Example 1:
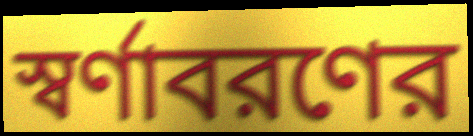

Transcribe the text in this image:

স্বর্ণাবরণের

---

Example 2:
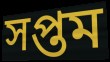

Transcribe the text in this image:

সপ্তম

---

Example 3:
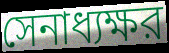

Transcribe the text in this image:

সেনাধ্যক্ষর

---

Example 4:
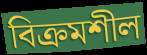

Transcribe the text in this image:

বিক্রমশীল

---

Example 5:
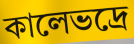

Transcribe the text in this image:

কালেভদ্রে